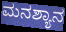
ಮನಶ್ಯಾನ